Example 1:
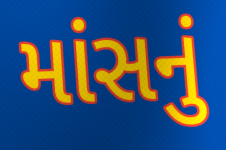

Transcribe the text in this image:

માંસનું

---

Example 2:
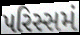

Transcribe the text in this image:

પરિસ્સમં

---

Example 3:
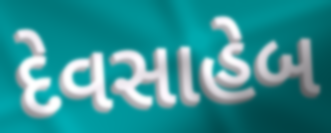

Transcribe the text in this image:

દેવસાહેબ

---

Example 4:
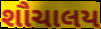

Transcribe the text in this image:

શૌચાલય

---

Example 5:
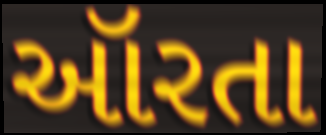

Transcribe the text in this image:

ઑરતા